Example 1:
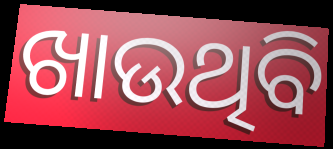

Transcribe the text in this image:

ଖାଉଥିବି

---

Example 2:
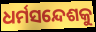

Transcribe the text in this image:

ଧର୍ମସନ୍ଦେଶକୁ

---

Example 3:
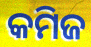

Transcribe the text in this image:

କମିଜ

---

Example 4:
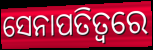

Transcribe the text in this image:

ସେନାପତିତ୍ୱରେ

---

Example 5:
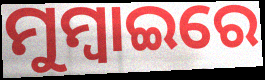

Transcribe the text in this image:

ମୁମ୍ୱାଇରେ